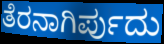
ತೆರನಾಗಿರ್ಪುದು